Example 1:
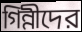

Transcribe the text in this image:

গিন্নীদের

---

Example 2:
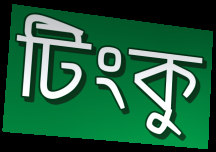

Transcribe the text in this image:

টিংকু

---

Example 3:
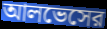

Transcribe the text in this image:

আলভেসের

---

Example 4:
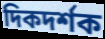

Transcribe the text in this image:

দিকদর্শক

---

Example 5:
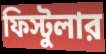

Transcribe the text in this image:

ফিস্টুলার